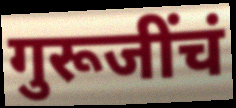
गुरूजींचं